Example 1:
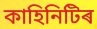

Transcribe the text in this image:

কাহিনিটিৰ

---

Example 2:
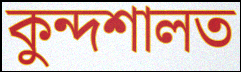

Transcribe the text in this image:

কুন্দশালত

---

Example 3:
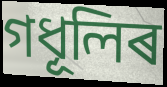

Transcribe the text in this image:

গধূলিৰ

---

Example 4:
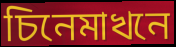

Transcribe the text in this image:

চিনেমাখনে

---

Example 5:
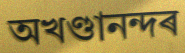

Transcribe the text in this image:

অখণ্ডানন্দৰ